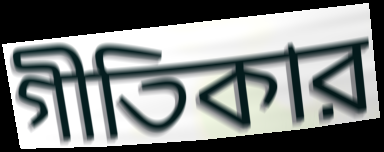
গীতিকার